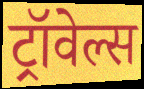
ट्रॉवेल्स